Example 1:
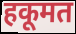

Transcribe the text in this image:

हकूमत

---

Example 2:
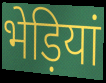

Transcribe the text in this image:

भेड़ियां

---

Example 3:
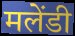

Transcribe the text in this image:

मलेंडी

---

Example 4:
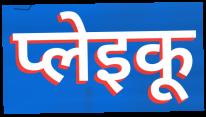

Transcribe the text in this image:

प्लेइकू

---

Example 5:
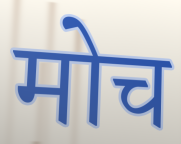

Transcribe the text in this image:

मोच